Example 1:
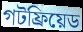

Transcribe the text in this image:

গটফ্রিয়েড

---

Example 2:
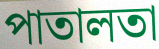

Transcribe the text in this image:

পাতালতা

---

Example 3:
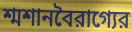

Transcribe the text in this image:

শ্মশানবৈরাগ্যের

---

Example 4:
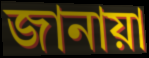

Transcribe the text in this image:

জানায়া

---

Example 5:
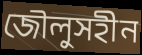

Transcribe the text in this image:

জৌলুসহীন